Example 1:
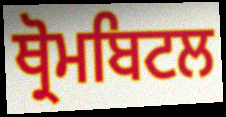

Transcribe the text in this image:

ਥ੍ਰੋਮਬਿਟਲ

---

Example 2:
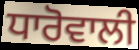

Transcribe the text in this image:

ਧਾਰੋਵਾਲੀ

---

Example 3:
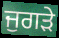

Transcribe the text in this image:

ਜੁਗੜੇ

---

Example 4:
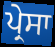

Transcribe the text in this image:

ਪ੍ਰੇਸਾ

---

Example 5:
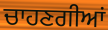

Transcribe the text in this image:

ਚਾਹਣਗੀਆਂ